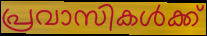
പ്രവാസികൾക്ക്